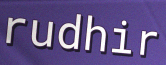
rudhir